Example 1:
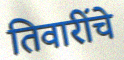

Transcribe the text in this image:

तिवारींचे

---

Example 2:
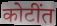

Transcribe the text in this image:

कोटींत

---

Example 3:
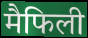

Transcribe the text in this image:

मैफिली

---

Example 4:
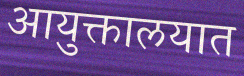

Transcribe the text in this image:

आयुक्तालयात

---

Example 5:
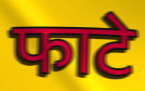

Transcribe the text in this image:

फाटे